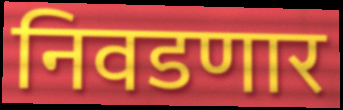
निवडणार